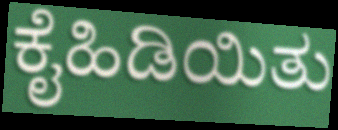
ಕೈಹಿಡಿಯಿತು